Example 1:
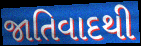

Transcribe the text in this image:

જાતિવાદથી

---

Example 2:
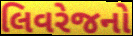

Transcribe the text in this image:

લિવરેજનો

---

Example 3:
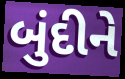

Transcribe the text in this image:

બુંદીને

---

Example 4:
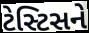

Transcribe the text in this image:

ટેસ્ટિસને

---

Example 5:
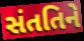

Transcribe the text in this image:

સંતતિને